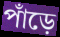
পাঁড়ে